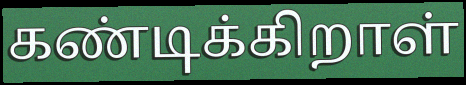
கண்டிக்கிறாள்